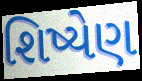
શિષ્યેણ